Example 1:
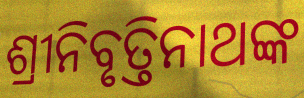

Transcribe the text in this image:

ଶ୍ରୀନିବୃତ୍ତିନାଥଙ୍କ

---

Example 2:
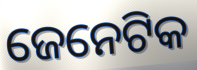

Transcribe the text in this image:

ଜେନେଟିକ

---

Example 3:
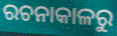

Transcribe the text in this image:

ରଚନାକାଳରୁ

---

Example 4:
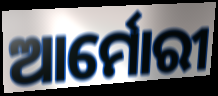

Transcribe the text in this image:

ଆର୍ମୋରୀ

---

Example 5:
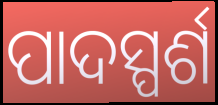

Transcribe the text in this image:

ପାଦସ୍ପର୍ଶ